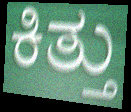
ಕಿತ್ತು